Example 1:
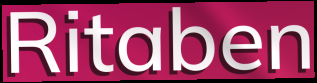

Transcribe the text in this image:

Ritaben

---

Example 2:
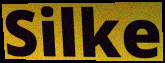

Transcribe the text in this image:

Silke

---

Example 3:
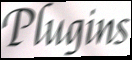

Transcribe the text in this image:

Plugins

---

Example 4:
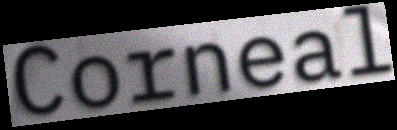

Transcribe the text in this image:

Corneal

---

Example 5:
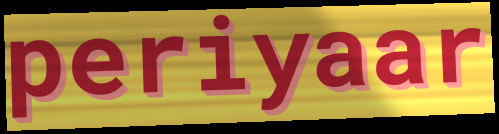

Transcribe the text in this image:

periyaar